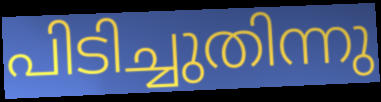
പിടിച്ചുതിന്നു